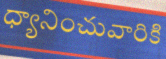
ధ్యానించువారికి